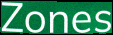
Zones